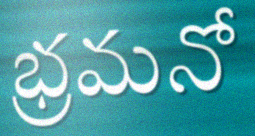
భ్రమనో